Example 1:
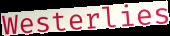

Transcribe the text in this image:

Westerlies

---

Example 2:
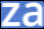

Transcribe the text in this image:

za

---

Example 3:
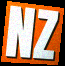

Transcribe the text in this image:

NZ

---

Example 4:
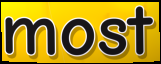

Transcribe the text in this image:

most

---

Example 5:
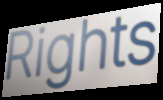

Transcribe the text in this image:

Rights